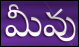
మీవు